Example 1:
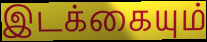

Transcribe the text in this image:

இடக்கையும்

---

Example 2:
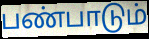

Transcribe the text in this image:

பண்பாடும்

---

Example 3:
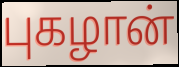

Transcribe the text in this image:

புகழான்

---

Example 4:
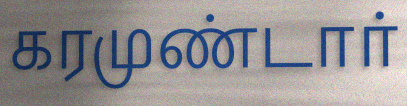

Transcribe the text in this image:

கரமுண்டார்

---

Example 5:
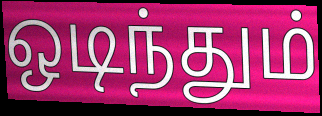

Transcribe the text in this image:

ஒடிந்தும்